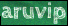
aruvip